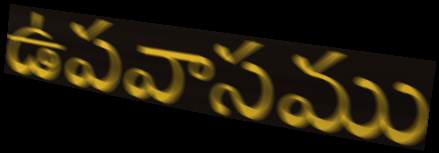
ఉపవాసము